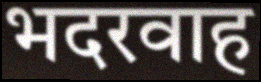
भदरवाह